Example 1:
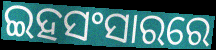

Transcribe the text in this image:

ଇହସଂସାରରେ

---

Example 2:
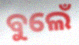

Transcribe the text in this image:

ବୁଲେଁ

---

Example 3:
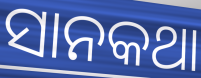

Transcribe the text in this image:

ସାନକଥା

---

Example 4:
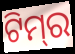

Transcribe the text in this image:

ଟିମ୍‌ର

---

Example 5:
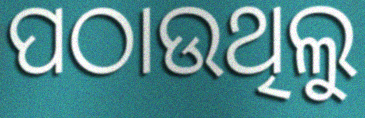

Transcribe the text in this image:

ପଠାଉଥିଲୁ